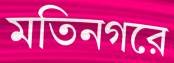
মতিনগরে